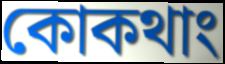
কোকথাং